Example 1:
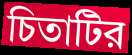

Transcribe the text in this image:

চিতাটির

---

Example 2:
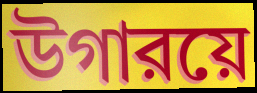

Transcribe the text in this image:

উগারয়ে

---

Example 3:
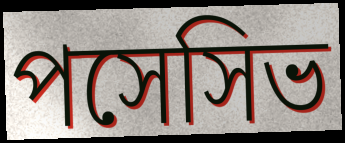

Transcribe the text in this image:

পসেসিভ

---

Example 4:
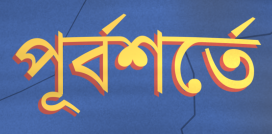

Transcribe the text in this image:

পূর্বশর্তে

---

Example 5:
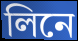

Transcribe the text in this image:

লিনে